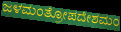
ಜಳಮಂತ್ರೋಪದೇಶಮಂ